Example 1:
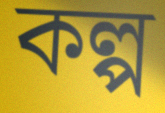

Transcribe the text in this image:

কল্প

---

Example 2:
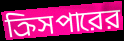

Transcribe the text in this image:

ক্রিসপারের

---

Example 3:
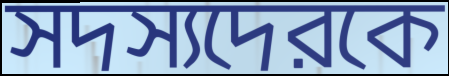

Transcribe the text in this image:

সদস্যদেরকে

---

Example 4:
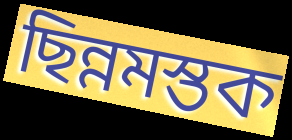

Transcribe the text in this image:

ছিন্নমস্তক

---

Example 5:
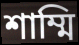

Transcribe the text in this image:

শাম্মি